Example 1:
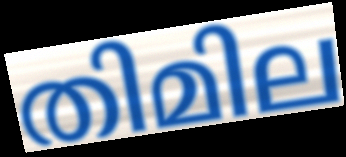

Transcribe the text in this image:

തിമില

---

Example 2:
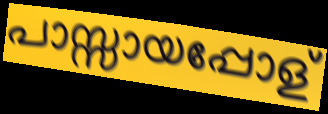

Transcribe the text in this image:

പാസ്സായപ്പോള്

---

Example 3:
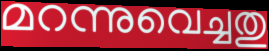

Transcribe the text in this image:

മറന്നുവെച്ചതു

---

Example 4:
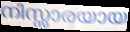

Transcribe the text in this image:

നിസ്സാരയായ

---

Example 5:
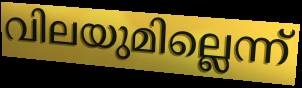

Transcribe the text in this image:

വിലയുമില്ലെന്ന്